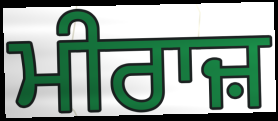
ਮੀਰਾਜ਼